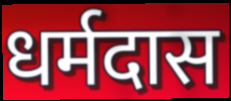
धर्मदास